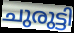
ചുരുട്ടി